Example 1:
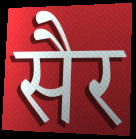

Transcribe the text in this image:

सैर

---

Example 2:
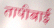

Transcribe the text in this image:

तापीबाई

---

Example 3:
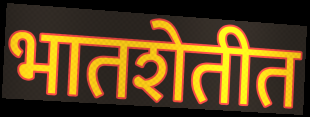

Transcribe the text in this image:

भातशेतीत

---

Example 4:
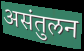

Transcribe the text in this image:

असंतुलन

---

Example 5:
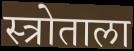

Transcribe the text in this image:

स्त्रोताला